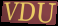
VDU